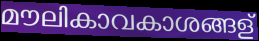
മൗലികാവകാശങ്ങള്